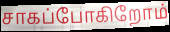
சாகப்போகிறோம்